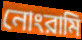
নোংরামি